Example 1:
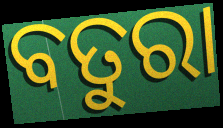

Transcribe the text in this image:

ବତୁରା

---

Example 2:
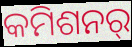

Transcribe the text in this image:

କମିଶନର୍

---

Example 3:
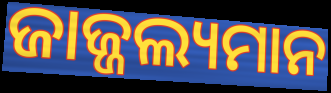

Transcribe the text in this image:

ଜାଜ୍ଜଲ୍ୟମାନ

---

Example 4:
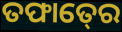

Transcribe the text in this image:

ତଫାତ୍‍ରେ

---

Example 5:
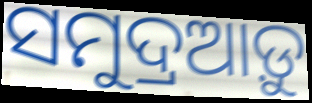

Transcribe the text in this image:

ସମୁଦ୍ରଆଡ଼ୁ